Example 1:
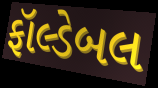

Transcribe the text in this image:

ફૉલ્ડેબલ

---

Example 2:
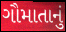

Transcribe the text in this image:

ગૌમાતાનું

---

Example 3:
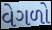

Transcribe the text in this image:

વેગળો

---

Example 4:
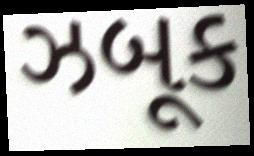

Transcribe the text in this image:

ઝબૂક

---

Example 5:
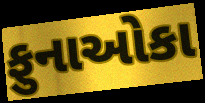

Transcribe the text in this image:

ફુનાઓકા